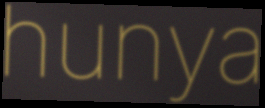
hunya